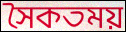
সৈকতময়